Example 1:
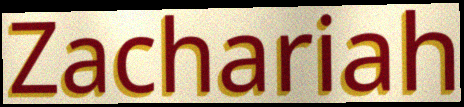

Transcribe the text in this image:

Zachariah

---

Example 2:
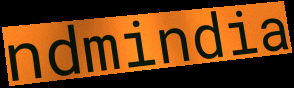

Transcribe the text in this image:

ndmindia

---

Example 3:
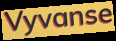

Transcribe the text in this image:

Vyvanse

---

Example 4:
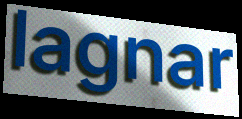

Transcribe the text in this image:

lagnar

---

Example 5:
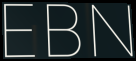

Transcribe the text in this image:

EBN